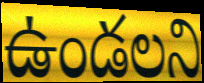
ఉండలని